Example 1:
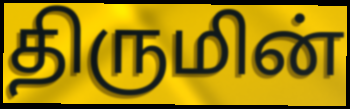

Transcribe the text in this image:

திருமின்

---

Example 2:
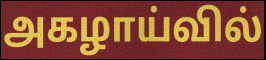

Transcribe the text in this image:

அகழாய்வில்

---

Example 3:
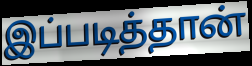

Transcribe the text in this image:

இப்படித்தான்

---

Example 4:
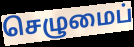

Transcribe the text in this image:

செழுமைப்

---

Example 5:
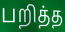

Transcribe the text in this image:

பறித்த